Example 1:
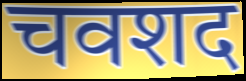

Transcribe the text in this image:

चवशद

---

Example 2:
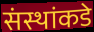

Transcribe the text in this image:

संस्थांकडे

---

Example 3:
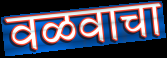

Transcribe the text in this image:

वळवाचा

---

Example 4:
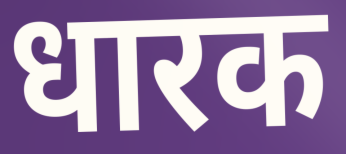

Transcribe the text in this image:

धारक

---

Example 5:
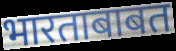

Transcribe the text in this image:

भारताबाबत